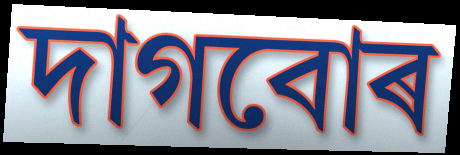
দাগবোৰ